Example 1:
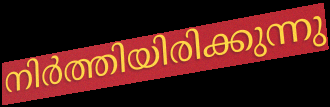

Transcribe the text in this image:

നിർത്തിയിരിക്കുന്നു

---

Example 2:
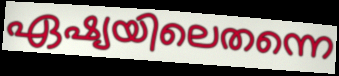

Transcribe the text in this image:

ഏഷ്യയിലെതന്നെ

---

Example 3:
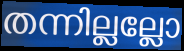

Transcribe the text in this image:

തന്നില്ലല്ലോ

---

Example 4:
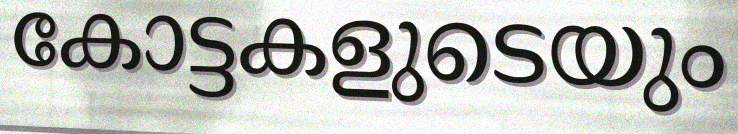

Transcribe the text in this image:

കോട്ടകളുടെയും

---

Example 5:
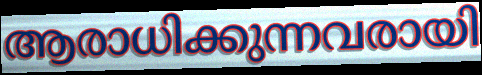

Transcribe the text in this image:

ആരാധിക്കുന്നവരായി